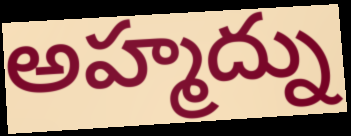
అహ్మద్ను